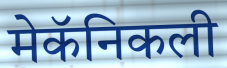
मेकॅनिकली